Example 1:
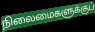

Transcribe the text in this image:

நிலைமைகளுக்குப்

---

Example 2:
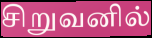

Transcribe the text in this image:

சிறுவனில்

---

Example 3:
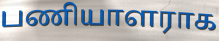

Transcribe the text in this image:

பணியாளராக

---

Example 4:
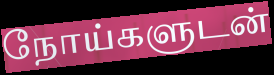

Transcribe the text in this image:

நோய்களுடன்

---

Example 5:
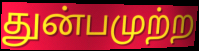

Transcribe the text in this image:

துன்பமுற்ற